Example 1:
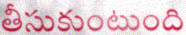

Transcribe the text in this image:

తీసుకుంటుంది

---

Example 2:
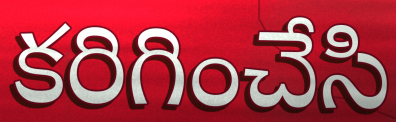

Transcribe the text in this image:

కరిగించేసి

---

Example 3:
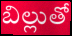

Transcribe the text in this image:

బిల్లుతో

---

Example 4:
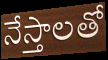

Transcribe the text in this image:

నేస్తాలతో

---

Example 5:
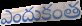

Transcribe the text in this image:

ఎందుకంత